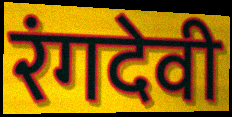
रंगदेवी